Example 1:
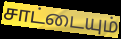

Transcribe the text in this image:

சாட்டையும்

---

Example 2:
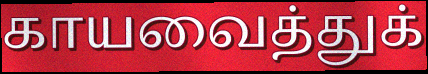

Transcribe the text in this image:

காயவைத்துக்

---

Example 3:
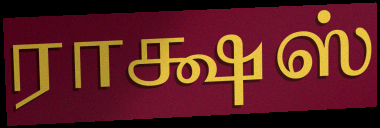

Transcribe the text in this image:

ராக்ஷஸ்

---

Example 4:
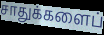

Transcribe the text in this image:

சாதுக்களைப்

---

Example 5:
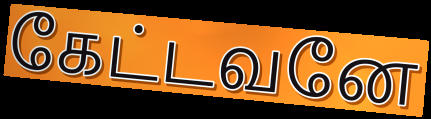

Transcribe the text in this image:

கேட்டவனே